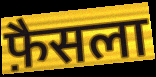
फ़ैसला